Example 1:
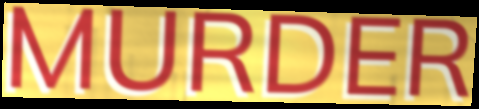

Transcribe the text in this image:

MURDER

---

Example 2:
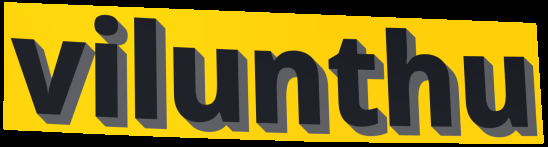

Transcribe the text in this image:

vilunthu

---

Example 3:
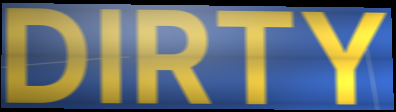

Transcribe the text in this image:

DIRTY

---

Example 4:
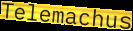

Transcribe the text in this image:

Telemachus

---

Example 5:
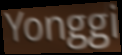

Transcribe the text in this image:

Yonggi